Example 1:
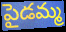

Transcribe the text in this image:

పైడమ్మ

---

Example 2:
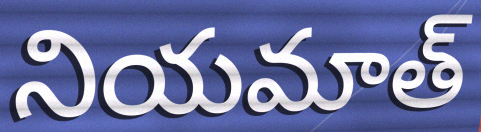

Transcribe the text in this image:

నియమాత్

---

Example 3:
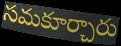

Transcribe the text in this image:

సమకూర్చారు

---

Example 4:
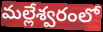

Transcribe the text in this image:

మల్లేశ్వరంలో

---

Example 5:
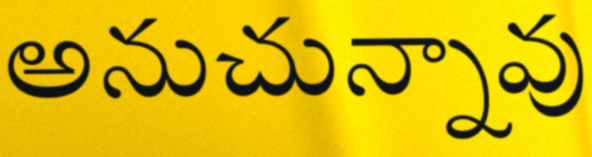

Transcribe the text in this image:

అనుచున్నావు